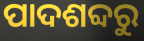
ପାଦଶବ୍ଦରୁ